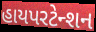
હાયપરટેન્શન